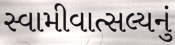
સ્વામીવાત્સલ્યનું